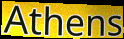
Athens